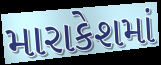
મારાકેશમાં